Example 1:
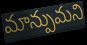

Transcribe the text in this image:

మాన్పుమని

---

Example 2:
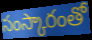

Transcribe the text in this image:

సంస్కారంతో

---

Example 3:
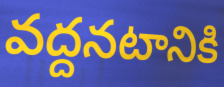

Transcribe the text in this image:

వద్దనటానికి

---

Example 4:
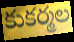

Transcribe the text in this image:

కుకర్మల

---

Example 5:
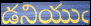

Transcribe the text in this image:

డనియుఁ